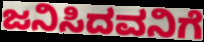
ಜನಿಸಿದವನಿಗೆ